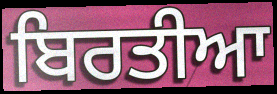
ਬਿਰਤੀਆ